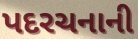
પદરચનાની